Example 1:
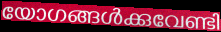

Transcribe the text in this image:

യോഗങ്ങൾക്കുവേണ്ടി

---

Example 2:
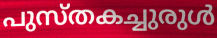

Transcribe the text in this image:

പുസ്തകച്ചുരുൾ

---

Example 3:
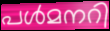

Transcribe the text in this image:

പൾമനറി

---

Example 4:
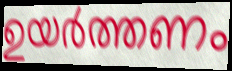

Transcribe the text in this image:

ഉയർത്തണം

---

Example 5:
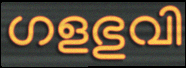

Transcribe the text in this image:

ഗളഭുവി